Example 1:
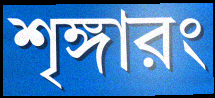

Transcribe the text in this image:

শৃঙ্গারং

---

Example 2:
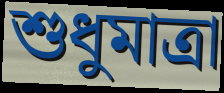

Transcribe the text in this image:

শুধুমাত্রা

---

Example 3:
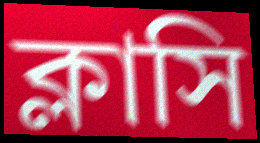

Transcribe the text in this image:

ক্লাসি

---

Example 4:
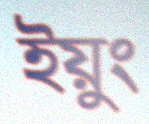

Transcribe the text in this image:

ইয়ুং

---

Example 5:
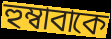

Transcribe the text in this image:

হুম্বাবাকে